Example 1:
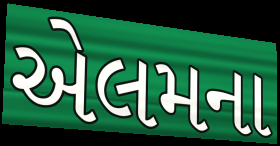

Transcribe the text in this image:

એલમના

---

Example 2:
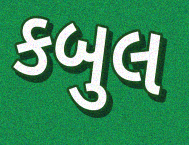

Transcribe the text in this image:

કબુલ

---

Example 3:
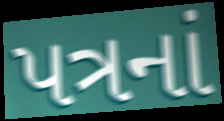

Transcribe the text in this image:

પત્રનાં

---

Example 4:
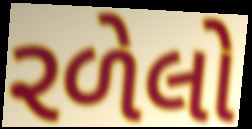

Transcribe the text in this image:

રળેલો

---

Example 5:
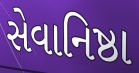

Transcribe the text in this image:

સેવાનિષ્ઠા